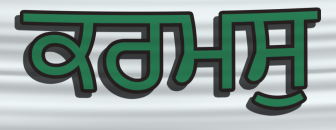
ਕਰਮਸੁ